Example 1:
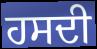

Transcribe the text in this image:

ਹਸਦੀ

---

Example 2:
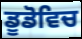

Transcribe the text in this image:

ਡੂਡੋਵਿਚ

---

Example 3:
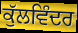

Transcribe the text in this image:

ਕੁੱਲਵਿੰਦਰ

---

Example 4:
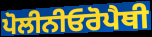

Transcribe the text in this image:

ਪੋਲੀਨੀਓਰੋਪੈਥੀ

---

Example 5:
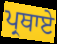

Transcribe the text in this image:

ਪ੍ਰਥਾਏ